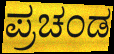
ಪ್ರಚಂಡ